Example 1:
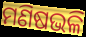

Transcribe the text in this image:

ମଣିଷଭଳି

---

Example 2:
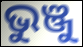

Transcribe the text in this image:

ଭୁଞ୍ଜୁ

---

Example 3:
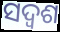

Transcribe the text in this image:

ସଦ୍ଵଶ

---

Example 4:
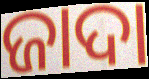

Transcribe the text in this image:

ଜାଦା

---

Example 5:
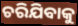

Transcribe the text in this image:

ଚରିଯିବାକୁ